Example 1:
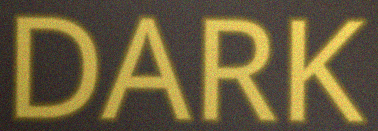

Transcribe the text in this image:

DARK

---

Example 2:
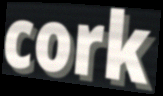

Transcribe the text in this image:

cork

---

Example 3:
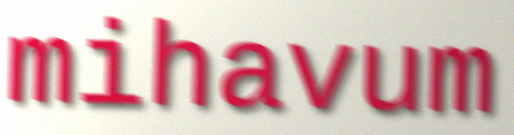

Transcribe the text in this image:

mihavum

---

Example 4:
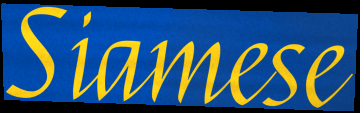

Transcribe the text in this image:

Siamese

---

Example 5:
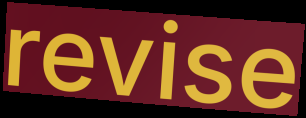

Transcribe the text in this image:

revise